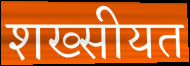
शख्सीयत